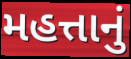
મહત્તાનું